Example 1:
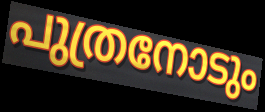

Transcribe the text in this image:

പുത്രനോടും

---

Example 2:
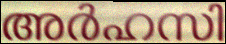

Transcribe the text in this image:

അർഹസി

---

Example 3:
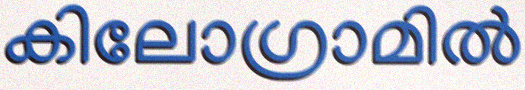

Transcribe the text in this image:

കിലോഗ്രാമിൽ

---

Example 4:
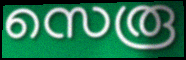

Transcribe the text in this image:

സെരൂ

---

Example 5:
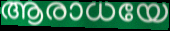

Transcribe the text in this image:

ആരാധയേ